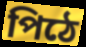
পিঠে